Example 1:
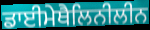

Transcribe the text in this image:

ਡਾਈਮੇਥੈਲਿਨੀਲੀਨ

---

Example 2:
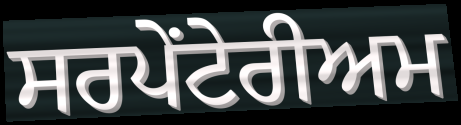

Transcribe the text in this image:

ਸਰਪੇਂਟੇਰੀਅਮ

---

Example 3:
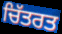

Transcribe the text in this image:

ਚਿੱਤਰਤ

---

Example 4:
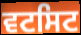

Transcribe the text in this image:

ਵਟਸਿਟ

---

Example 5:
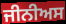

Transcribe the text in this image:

ਜੀਨੀਅਸ